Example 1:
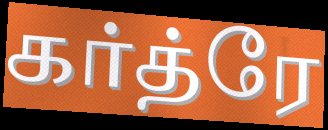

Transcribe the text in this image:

கர்த்ரே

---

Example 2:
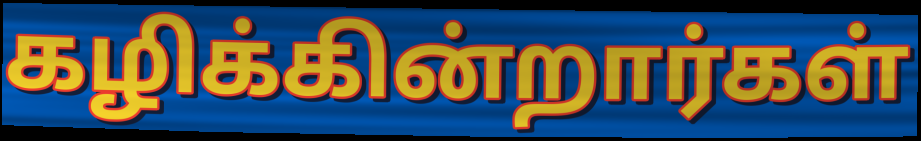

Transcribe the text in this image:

கழிக்கின்றார்கள்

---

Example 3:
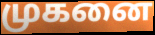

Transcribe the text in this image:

முகனை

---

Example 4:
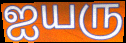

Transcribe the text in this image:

ஐயரு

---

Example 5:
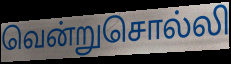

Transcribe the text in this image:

வென்றுசொல்லி